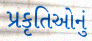
પ્રકૃતિઓનું